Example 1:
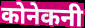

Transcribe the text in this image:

कोनेकनी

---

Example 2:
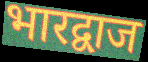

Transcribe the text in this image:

भारद्वाज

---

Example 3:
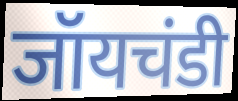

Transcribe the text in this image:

जॉयचंडी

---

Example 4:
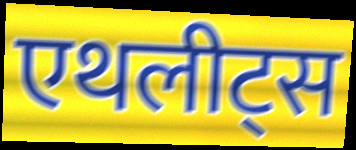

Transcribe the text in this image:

एथलीट्स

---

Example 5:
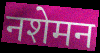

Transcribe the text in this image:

नशेमन